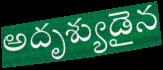
అదృశ్యుడైన